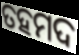
ତହମଦ